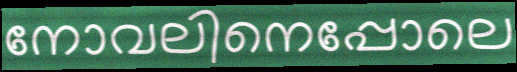
നോവലിനെപ്പോലെ